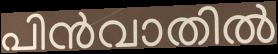
പിൻവാതിൽ